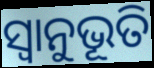
ସ୍ଵାନୁଭୂତି